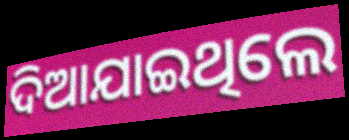
ଦିଆଯାଇଥିଲେ